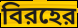
বিরহের